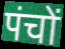
पंचों